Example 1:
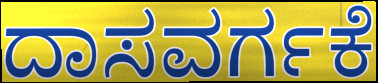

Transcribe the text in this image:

ದಾಸವರ್ಗಕೆ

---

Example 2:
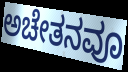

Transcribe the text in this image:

ಅಚೇತನವೂ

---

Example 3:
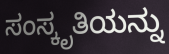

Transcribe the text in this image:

ಸಂಸ್ಕೃತಿಯನ್ನು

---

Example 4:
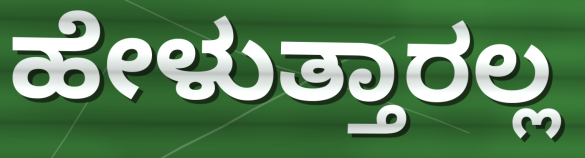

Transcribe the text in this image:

ಹೇಳುತ್ತಾರಲ್ಲ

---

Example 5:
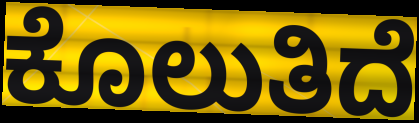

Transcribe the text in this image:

ಕೊಲುತಿದೆ